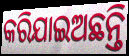
କରିଯାଇଅଛନ୍ତି